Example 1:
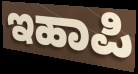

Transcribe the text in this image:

ಇಹಾಪಿ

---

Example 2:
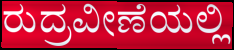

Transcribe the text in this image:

ರುದ್ರವೀಣೆಯಲ್ಲಿ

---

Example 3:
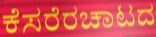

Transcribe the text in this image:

ಕೆಸರೆರಚಾಟದ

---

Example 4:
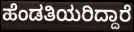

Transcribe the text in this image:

ಹೆಂಡತಿಯರಿದ್ದಾರೆ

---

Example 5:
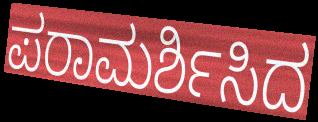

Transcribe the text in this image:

ಪರಾಮರ್ಶಿಸಿದ